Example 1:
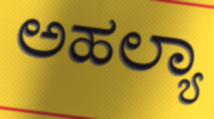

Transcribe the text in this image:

ಅಹಲ್ಯಾ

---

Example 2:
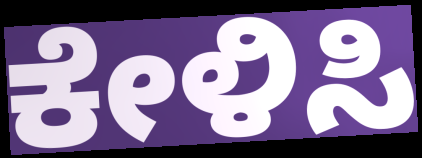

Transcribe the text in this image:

ಕೇಳಿಸಿ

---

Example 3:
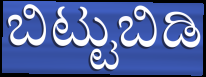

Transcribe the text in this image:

ಬಿಟ್ಟುಬಿಡಿ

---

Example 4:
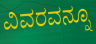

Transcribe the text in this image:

ವಿವರವನ್ನೂ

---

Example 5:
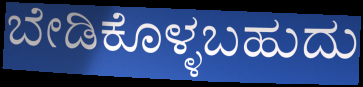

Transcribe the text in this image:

ಬೇಡಿಕೊಳ್ಳಬಹುದು